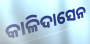
କାଳିଦାସେନ